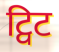
ट्विट